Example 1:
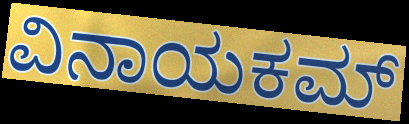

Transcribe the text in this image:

ವಿನಾಯಕಮ್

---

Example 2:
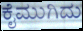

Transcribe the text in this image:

ಕೈಮುಗಿದು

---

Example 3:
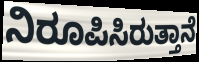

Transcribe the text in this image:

ನಿರೂಪಿಸಿರುತ್ತಾನೆ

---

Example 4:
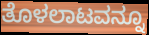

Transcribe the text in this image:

ತೊಳಲಾಟವನ್ನೂ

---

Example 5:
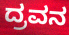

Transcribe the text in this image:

ದ್ರವನ